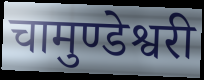
चामुण्डेश्वरी